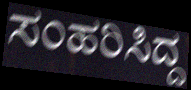
ಸಂಹರಿಸಿದ್ದ